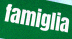
famiglia